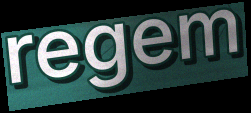
regem